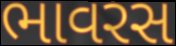
ભાવરસ